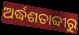
ଅର୍ଦ୍ଧଶତାବ୍ଦୀରୁ